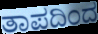
ತಾಪದಿಂದ